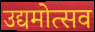
उद्यमोत्सव